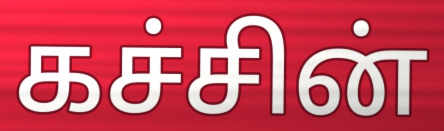
கச்சின்